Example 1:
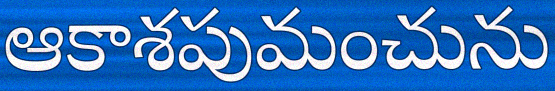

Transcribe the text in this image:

ఆకాశపుమంచును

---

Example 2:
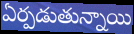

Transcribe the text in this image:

ఏర్పడుతున్నాయి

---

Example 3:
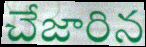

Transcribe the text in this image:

చేజారిన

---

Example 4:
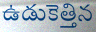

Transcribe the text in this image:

ఉడుకెత్తిన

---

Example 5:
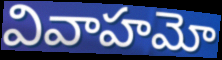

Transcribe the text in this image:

వివాహమో